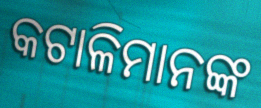
କଟାଳିମାନଙ୍କ